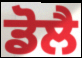
ਡੋਲੈ